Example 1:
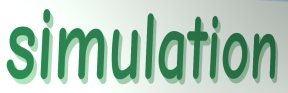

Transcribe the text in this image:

simulation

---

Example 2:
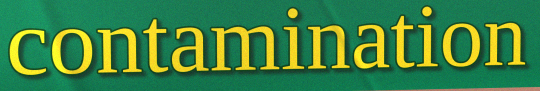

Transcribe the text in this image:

contamination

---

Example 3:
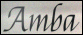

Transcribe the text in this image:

Amba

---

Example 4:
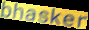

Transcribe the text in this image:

bhasker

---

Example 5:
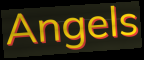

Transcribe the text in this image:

Angels